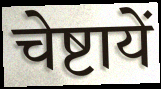
चेष्टायें